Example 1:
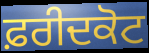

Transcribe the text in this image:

ਫ਼ਰੀਦਕੋਟ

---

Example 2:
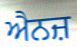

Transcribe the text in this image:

ਐਨਜ਼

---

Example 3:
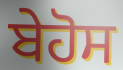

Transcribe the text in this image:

ਬੇਹੋਸ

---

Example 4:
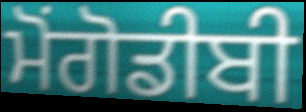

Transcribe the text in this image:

ਮੋਂਗੋਡੀਬੀ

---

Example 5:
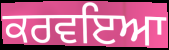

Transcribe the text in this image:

ਕਰਵਇਆ